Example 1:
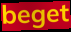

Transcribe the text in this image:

beget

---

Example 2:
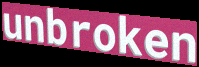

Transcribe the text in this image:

unbroken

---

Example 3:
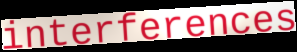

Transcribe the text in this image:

interferences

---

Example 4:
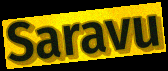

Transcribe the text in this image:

Saravu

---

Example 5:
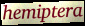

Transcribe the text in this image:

hemiptera